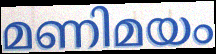
മണിമയം